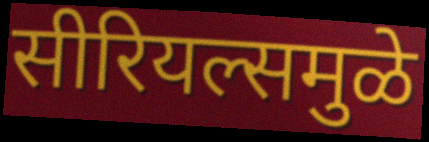
सीरियल्समुळे